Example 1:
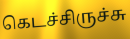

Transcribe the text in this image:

கெடச்சிருச்சு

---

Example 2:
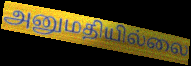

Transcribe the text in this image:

அனுமதியில்லை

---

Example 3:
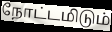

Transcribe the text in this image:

நோட்டமிடும்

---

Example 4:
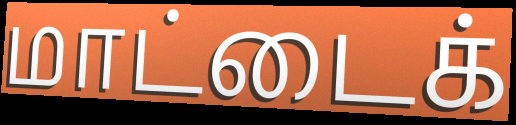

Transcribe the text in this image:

மாட்டைக்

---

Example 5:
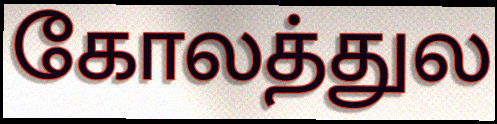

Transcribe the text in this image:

கோலத்துல